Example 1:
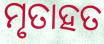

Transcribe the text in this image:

ମୃତାହତ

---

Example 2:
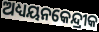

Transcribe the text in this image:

ଅଧ୍ୟୟନକେନ୍ଦ୍ରୀକ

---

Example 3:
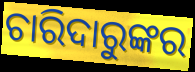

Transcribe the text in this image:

ଚାରିଦାରୁଙ୍କର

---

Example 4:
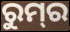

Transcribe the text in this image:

ରୁମ୍‍ର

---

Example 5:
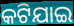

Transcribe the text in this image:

କଟିଯାଇ